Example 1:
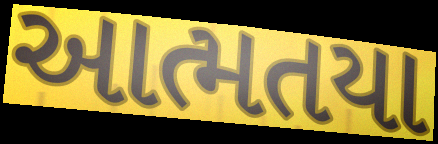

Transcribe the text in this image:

આત્મતયા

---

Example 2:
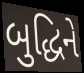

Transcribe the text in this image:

બુદ્ધિને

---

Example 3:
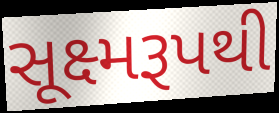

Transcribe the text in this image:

સૂક્ષ્મરૂપથી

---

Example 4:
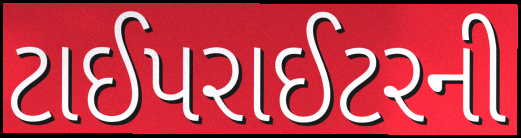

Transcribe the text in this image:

ટાઈપરાઈટરની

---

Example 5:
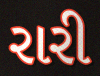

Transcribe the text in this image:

રારી